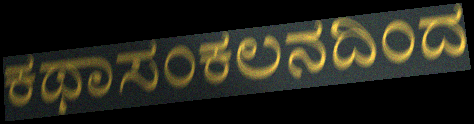
ಕಥಾಸಂಕಲನದಿಂದ